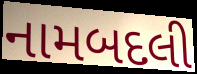
નામબદલી